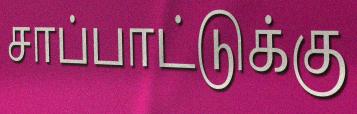
சாப்பாட்டுக்கு